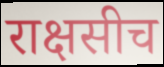
राक्षसीच